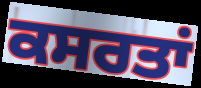
ਕਸਰਤਾਂ